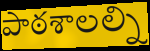
పాఠశాలల్ని